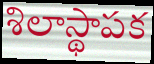
శిలాస్థాపక